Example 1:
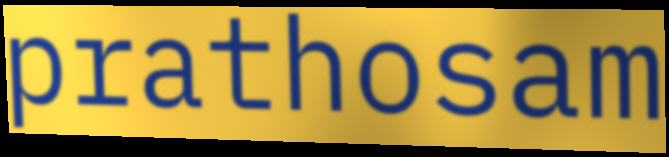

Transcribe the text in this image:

prathosam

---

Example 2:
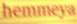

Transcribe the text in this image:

hemmeya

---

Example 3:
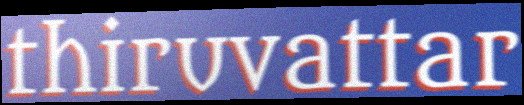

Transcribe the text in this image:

thiruvattar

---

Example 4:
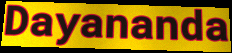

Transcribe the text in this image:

Dayananda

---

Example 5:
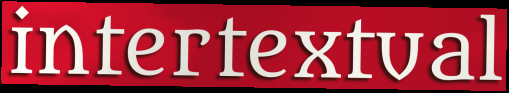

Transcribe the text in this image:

intertextual